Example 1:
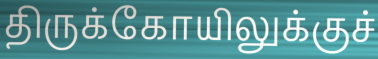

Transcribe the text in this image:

திருக்கோயிலுக்குச்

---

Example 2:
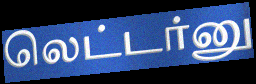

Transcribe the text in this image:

லெட்டர்னு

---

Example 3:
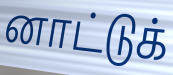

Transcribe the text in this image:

னாட்டுக்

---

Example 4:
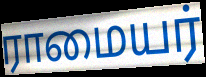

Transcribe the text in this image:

ராமையர்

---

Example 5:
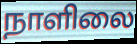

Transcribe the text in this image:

நாளிலை